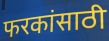
फरकांसाठी